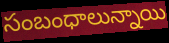
సంబంధాలున్నాయి